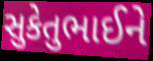
સુકેતુભાઈને